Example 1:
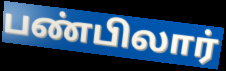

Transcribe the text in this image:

பண்பிலார்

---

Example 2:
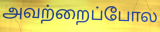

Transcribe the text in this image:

அவற்றைப்போல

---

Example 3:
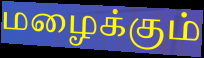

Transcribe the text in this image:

மழைக்கும்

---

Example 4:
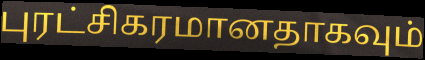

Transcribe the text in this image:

புரட்சிகரமானதாகவும்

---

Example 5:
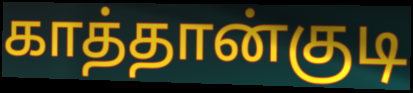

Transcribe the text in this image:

காத்தான்குடி